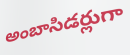
అంబాసిడర్లుగా